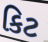
કિટ